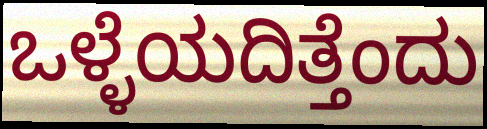
ಒಳ್ಳೆಯದಿತ್ತೆಂದು